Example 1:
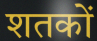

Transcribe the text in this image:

शतकों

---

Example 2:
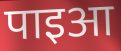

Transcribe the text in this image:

पाइआ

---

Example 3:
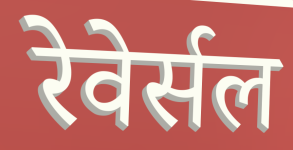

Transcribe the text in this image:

रेवेर्सल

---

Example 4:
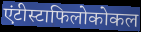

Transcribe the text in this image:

एंटीस्टाफिलोकोकल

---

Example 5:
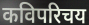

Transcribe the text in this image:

कविपरिचय